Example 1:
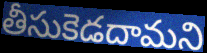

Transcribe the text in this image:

తీసుకెడదామని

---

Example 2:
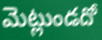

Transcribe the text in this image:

మెట్లుండదో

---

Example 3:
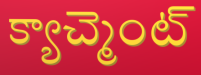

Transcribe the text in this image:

క్యాచ్మెంట్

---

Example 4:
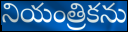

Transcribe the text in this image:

నియంత్రికను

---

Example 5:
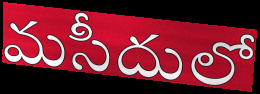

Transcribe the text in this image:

మసీదులో